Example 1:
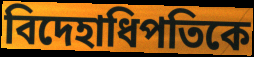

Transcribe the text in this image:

বিদেহাধিপতিকে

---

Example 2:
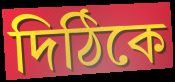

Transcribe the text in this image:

দিঠিকে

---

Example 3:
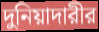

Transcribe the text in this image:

দুনিয়াদারীর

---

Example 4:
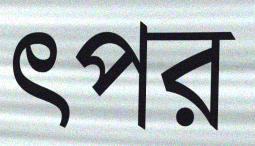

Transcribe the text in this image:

ৎপর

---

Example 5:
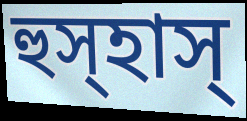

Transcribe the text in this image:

হুস্হাস্